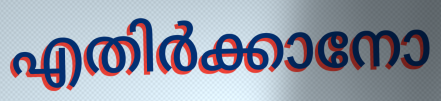
എതിർക്കാനോ